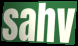
sahv